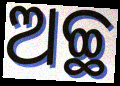
ଅଚ୍ଛ